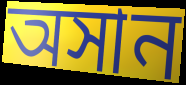
অসান